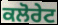
ਕਲੋਰੇਟ